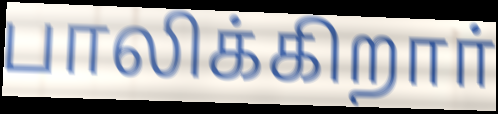
பாலிக்கிறார்